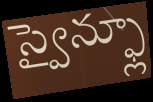
స్వైన్ఫ్లూ